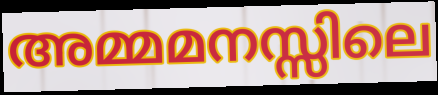
അമ്മമനസ്സിലെ